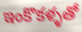
ఇంకొకళ్ళతో